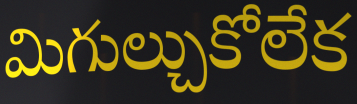
మిగుల్చుకోలేక